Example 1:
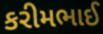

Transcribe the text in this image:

કરીમભાઈ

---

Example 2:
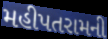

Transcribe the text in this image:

મહીપતરામની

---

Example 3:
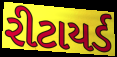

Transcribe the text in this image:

રીટાયર્ડ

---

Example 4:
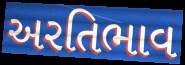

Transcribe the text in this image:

અરતિભાવ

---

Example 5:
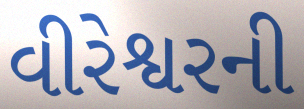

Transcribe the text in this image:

વીરેશ્વરની